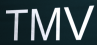
TMV